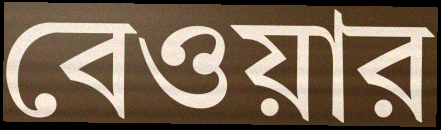
বেওয়ার